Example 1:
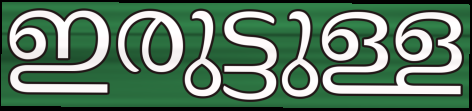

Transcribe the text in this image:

ഇരുട്ടുള്ള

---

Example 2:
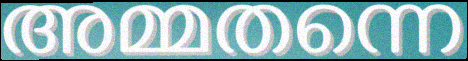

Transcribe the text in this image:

അമ്മതന്നെ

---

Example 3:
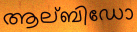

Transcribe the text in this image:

ആല്ബിഡോ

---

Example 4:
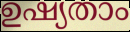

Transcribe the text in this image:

ഉഷ്യതാം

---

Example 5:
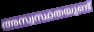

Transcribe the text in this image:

അസ്വസ്ഥതയുണ്ട്